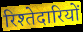
रिश्तेदारियों